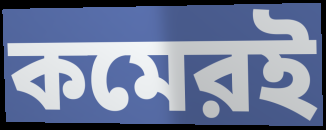
কমেরই